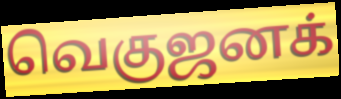
வெகுஜனக்